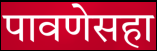
पावणेसहा